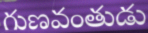
గుణవంతుడు